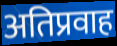
अतिप्रवाह